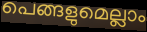
പെങ്ങളുമെല്ലാം